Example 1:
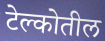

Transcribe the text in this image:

टेल्कोतील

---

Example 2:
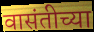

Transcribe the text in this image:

वासंतीच्या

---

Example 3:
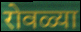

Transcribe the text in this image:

रोवळ्या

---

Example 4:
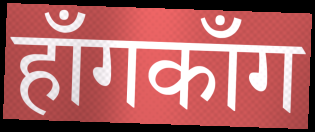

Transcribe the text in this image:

हाँगकाँग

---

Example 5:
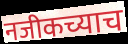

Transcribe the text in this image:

नजीकच्याच